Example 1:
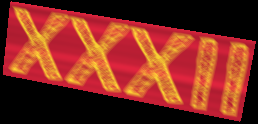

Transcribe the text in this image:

XXXII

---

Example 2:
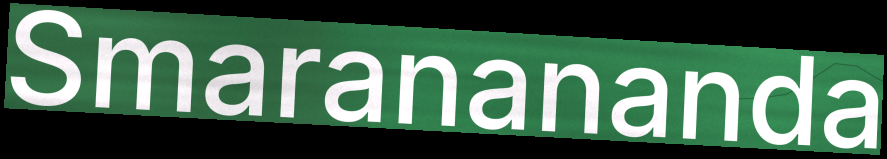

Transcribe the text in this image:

Smaranananda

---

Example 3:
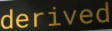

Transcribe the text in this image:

derived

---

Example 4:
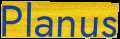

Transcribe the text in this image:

Planus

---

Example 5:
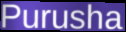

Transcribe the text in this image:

Purusha